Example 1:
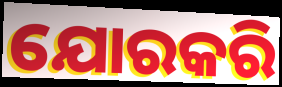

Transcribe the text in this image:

ଯୋରକରି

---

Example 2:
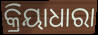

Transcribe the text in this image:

କ୍ରିୟାଧାରା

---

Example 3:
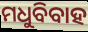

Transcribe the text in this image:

ମଧୁବିବାହ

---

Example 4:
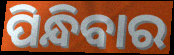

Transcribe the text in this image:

ପିନ୍ଧିବାର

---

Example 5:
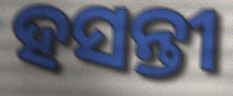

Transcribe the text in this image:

ହସନ୍ତୀ